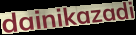
dainikazadi